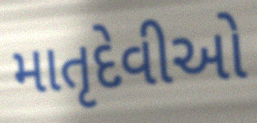
માતૃદેવીઓ